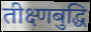
तीक्ष्णबुद्धि